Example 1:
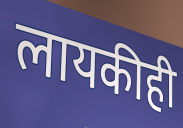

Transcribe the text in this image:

लायकीही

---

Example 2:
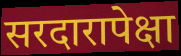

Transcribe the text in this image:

सरदारापेक्षा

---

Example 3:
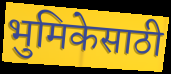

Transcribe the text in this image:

भुमिकेसाठी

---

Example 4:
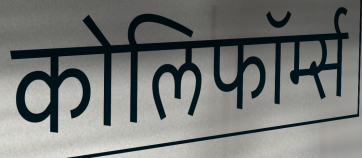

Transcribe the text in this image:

कोलिफॉर्म्स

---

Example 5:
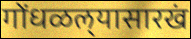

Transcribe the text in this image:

गोंधळल्यासारखं